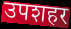
उपशहर